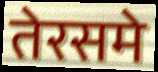
तेरसमे